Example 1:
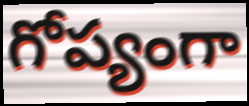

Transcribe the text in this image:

గోప్యంగా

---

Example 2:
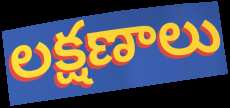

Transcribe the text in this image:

లక్షణాలు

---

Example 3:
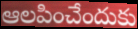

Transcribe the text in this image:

ఆలపించేందుకు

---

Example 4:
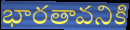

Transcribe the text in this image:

భారతావనికి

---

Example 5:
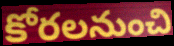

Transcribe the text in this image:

కోరలనుంచి